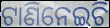
ଟାଣିନେଇଚି